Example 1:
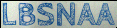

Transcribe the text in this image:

LBSNAA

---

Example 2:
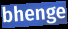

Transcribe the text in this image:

bhenge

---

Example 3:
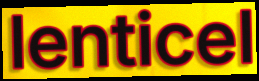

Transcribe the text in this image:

lenticel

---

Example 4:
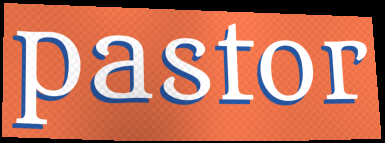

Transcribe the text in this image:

pastor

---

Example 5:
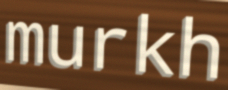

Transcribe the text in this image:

murkh